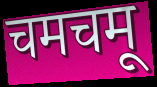
चमचमू